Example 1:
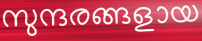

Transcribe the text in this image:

സുന്ദരങ്ങളായ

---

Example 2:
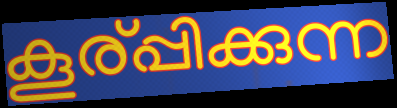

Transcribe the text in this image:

കൂര്പ്പിക്കുന്ന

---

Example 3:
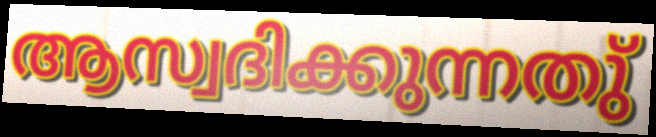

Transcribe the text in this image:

ആസ്വദിക്കുന്നതു്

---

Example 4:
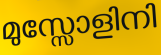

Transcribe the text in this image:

മുസ്സോളിനി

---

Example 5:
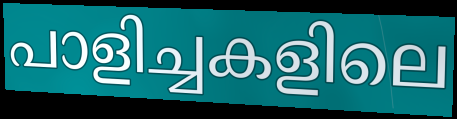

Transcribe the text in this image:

പാളിച്ചകളിലെ